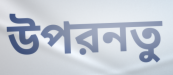
উপরনতু